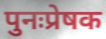
पुनःप्रेषक